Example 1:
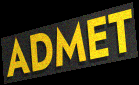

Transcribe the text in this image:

ADMET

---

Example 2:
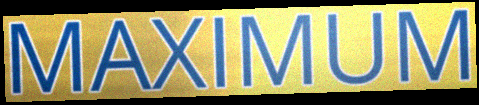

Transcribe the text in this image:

MAXIMUM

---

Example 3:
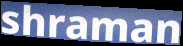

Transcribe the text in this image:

shraman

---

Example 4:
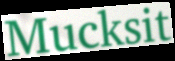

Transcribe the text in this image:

Mucksit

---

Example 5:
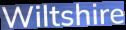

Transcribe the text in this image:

Wiltshire